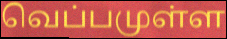
வெப்பமுள்ள